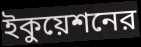
ইকুয়েশনের